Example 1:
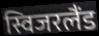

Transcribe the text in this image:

स्विजरलैंड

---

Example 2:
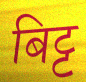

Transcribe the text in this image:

बिट्ट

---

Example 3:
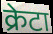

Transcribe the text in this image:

क्रेटा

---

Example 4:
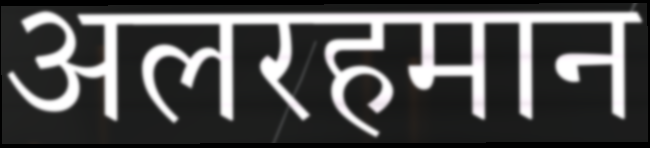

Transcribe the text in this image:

अलरहमान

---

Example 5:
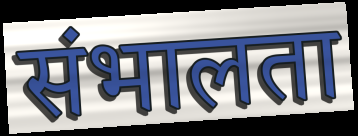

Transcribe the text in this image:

संभालता